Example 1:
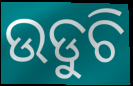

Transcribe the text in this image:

ଉଡୁଚି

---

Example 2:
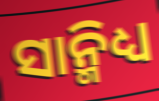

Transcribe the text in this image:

ସାନ୍ମିଧ୍ୟ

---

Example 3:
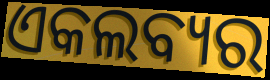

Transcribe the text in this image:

ଏକଲବ୍ୟର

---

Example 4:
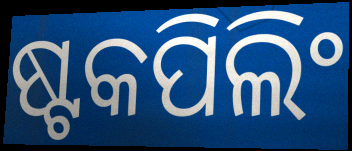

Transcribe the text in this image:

ଷ୍ଟକପିଲିଂ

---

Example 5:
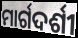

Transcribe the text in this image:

ମାର୍ଗଦର୍ଶୀ